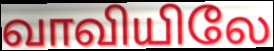
வாவியிலே